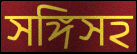
সঙ্গিসহ